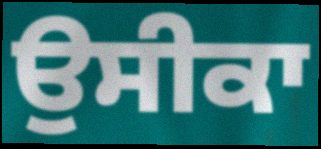
ਉਸੀਕਾ